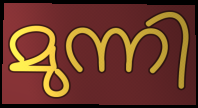
മുന്നി